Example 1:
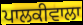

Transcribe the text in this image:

ਪਾਲਕੀਵਾਲਾ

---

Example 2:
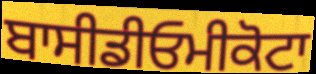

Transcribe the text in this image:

ਬਾਸੀਡੀਓਮੀਕੋਟਾ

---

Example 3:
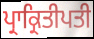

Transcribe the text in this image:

ਪ੍ਰਾਕ੍ਰਿਤੀਪਤੀ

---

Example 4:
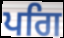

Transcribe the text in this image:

ਪਗਿ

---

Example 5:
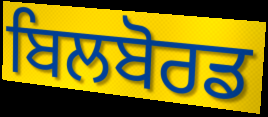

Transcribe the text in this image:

ਬਿਲਬੋਰਡ